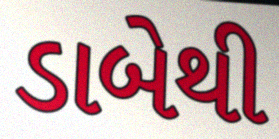
ડાબેથી